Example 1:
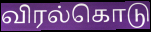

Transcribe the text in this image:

விரல்கொடு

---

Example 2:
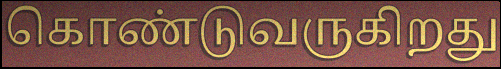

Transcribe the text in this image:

கொண்டுவருகிறது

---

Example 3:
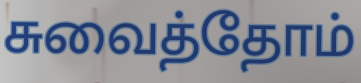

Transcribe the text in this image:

சுவைத்தோம்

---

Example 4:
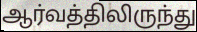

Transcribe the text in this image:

ஆர்வத்திலிருந்து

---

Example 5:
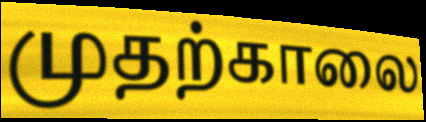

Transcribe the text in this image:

முதற்காலை